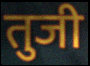
तुजी